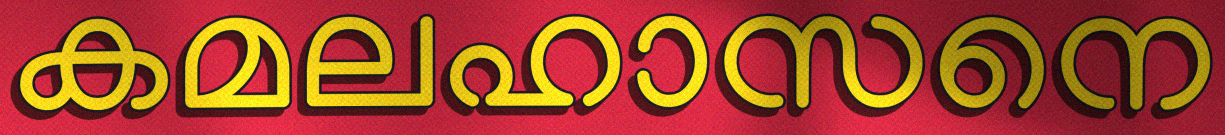
കമലഹാസനെ